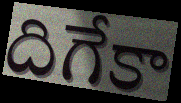
దిగేకా